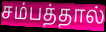
சம்பத்தால்